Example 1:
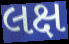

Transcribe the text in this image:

લક્ષ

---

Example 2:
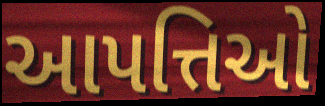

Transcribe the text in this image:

આપત્તિઓ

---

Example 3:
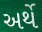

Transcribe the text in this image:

અર્થે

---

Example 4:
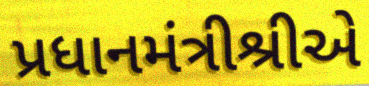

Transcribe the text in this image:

પ્રધાનમંત્રીશ્રીએ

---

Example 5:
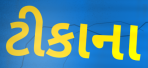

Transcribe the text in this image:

ટીકાના